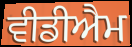
ਵੀਡੀਐਮ